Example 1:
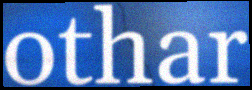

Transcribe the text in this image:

othar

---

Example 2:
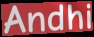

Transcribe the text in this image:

Andhi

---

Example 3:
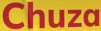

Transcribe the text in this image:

Chuza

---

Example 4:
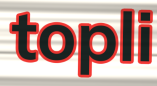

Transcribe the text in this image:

topli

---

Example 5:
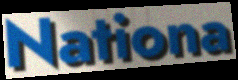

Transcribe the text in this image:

Nationa